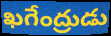
ఖగేంద్రుడు